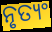
ନୃତ୍ୟଂ